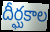
దీర్ఘకాల